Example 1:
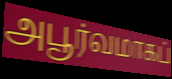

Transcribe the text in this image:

அபூர்வமாகப்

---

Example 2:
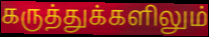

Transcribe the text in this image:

கருத்துக்களிலும்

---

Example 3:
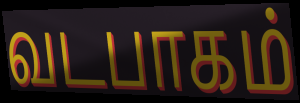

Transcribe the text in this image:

வடபாகம்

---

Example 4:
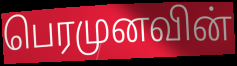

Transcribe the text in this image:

பெரமுனவின்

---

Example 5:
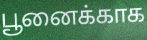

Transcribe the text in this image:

பூனைக்காக